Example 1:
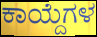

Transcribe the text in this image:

ಕಾಯ್ದೆಗಳ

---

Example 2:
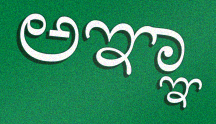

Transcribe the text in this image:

ಅಞ್ಞಾ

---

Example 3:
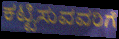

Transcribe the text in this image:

ಕಟ್ಟಿಸುವವರಿಗೆ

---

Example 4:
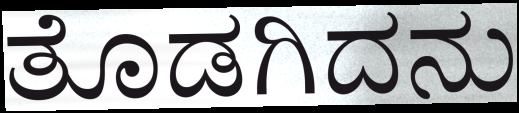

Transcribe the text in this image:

ತೊಡಗಿದನು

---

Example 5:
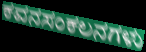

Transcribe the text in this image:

ಕವನಸಂಕಲನಗಳು